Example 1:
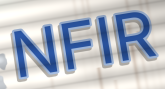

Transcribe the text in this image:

NFIR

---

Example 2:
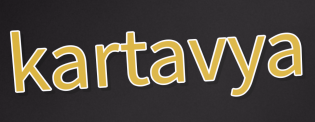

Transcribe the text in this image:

kartavya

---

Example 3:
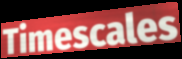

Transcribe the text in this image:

Timescales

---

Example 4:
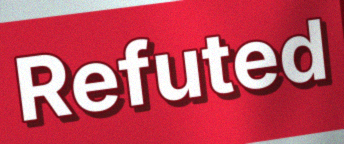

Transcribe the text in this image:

Refuted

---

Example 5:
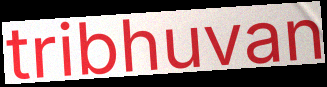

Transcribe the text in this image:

tribhuvan